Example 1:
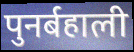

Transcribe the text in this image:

पुनर्बहाली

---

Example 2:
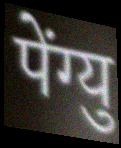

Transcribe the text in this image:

पेंग्यु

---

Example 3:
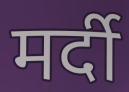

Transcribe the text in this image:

मर्दी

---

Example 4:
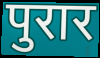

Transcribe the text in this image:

पुरार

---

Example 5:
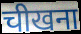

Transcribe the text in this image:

चीखना